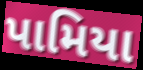
પામિયા